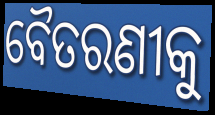
ବୈତରଣୀକୁ